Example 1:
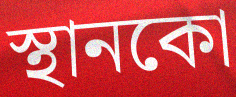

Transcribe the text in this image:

স্থানকো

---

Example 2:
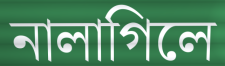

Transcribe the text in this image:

নালাগিলে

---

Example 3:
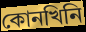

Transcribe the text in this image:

কোনখিনি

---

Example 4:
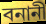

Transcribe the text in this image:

বনানী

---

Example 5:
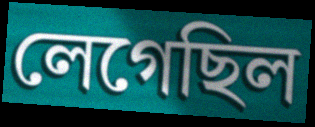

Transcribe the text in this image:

লেগেছিল